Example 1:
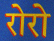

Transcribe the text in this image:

रोरो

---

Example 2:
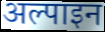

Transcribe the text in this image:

अल्पाइन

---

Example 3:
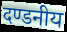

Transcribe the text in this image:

दण्डनीय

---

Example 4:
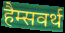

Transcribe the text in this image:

हैम्सवर्थ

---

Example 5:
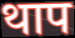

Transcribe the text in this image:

थाप